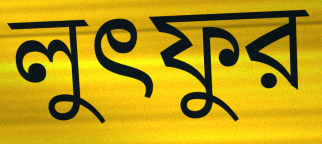
লুৎফুর